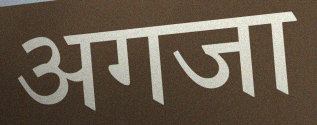
अगजा